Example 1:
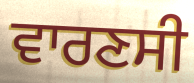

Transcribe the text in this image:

ਵਾਰਣਸੀ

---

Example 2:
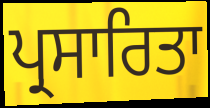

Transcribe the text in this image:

ਪ੍ਰਸਾਰਿਤਾ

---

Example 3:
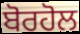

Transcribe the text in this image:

ਬੋਰਹੋਲ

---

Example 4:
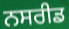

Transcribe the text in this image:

ਨਸਰੀਡ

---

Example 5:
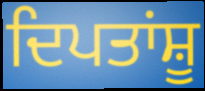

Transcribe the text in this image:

ਦਿਪਤਾਂਸ਼ੂ